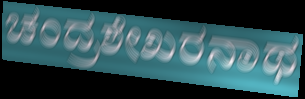
ಚಂದ್ರಶೇಖರನಾಥ